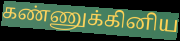
கண்ணுக்கினிய